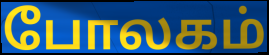
போலகம்